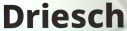
Driesch